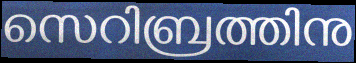
സെറിബ്രത്തിനു